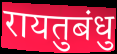
रायतुबंधु